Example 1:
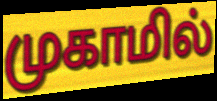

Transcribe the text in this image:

முகாமில்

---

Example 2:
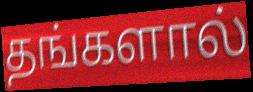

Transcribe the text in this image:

தங்களால்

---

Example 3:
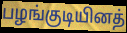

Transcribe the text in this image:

பழங்குடியினத்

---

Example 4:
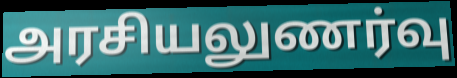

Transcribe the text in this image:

அரசியலுணர்வு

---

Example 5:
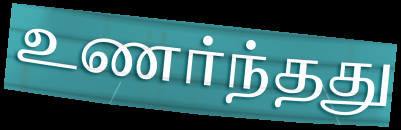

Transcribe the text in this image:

உணர்ந்தது